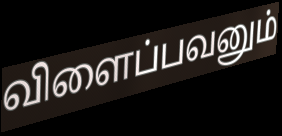
விளைப்பவனும்